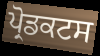
ਪ੍ਰੋਡਕਟਸ